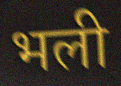
भली